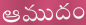
ఆముదం